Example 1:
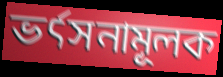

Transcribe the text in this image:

ভর্ৎসনামূলক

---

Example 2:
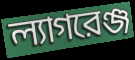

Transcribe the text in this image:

ল্যাগরেঞ্জ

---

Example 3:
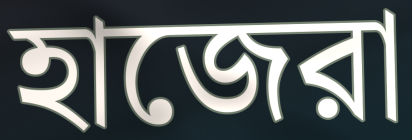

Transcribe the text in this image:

হাজেরা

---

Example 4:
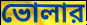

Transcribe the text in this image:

ভোলার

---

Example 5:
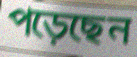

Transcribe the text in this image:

পড়েছেন